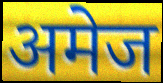
अमेज